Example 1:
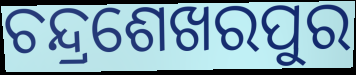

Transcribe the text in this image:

ଚନ୍ଦ୍ରଶେଖରପୁର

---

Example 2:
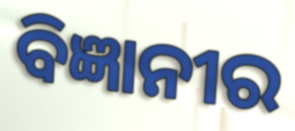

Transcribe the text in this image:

ବିଜ୍ଞାନୀର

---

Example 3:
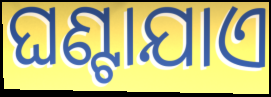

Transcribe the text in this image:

ଘଣ୍ଟାଯାଏ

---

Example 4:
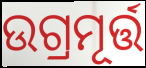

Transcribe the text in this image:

ଉଗ୍ରମୂର୍ତ୍ତ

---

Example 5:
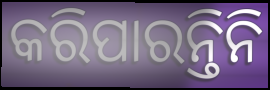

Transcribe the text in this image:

କରିପାରନ୍ତିନି